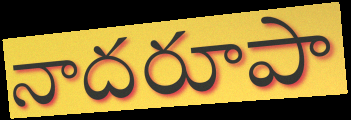
నాదరూపా